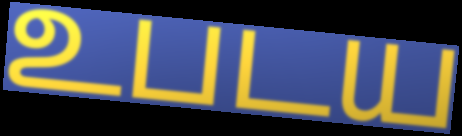
உபடய